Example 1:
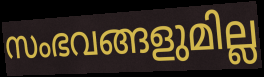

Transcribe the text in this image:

സംഭവങ്ങളുമില്ല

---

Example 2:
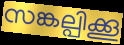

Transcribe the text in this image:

സങ്കല്പിക്കൂ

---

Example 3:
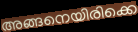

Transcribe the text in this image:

അങ്ങനെയിരിക്കെ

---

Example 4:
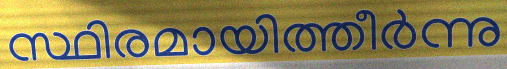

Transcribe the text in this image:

സ്ഥിരമായിത്തീർന്നു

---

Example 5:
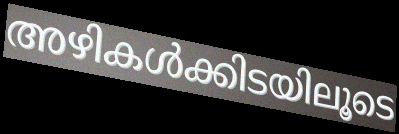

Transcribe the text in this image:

അഴികൾക്കിടയിലൂടെ